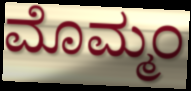
ಮೊಮ್ಮಂ